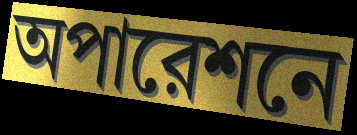
অপারেশনে